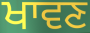
ਖਾਵਣ